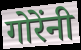
गोरेंनी